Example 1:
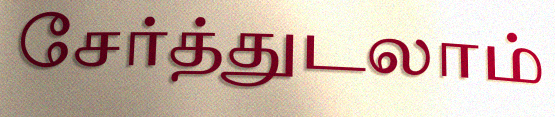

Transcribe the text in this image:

சேர்த்துடலாம்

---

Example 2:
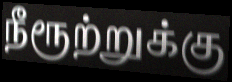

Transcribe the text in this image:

நீரூற்றுக்கு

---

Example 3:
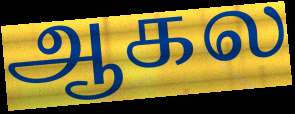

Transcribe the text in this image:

ஆகல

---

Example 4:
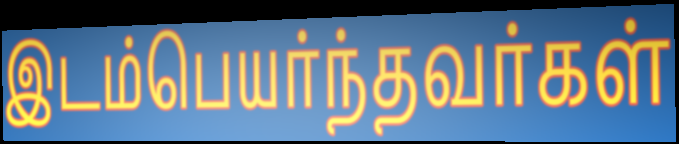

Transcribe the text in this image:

இடம்பெயர்ந்தவர்கள்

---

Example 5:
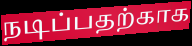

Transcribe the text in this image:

நடிப்பதற்காக